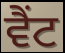
ਵੈਂਟ